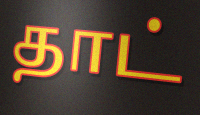
தாட்